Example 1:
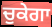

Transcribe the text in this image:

ਚੁਕੇਗਾ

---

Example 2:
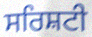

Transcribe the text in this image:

ਸਰਿਸ਼ਟੀ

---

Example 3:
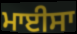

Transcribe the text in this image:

ਮਾਈਸਾ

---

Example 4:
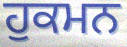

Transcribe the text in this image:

ਹੁਕਮਨ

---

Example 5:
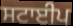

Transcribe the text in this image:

ਸਟਾਈਪ